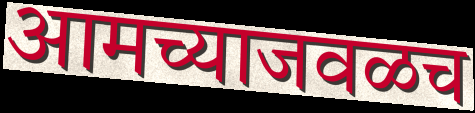
आमच्याजवळच